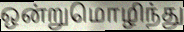
ஒன்றுமொழிந்து